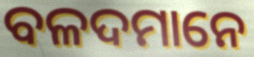
ବଳଦମାନେ